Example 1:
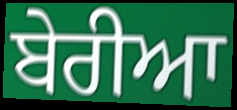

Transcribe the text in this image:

ਬੇਰੀਆ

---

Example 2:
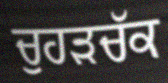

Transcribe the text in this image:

ਚੁਹੜਚੱਕ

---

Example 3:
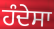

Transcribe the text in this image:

ਹੰਦੇਸਾ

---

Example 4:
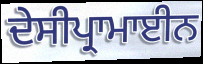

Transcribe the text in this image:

ਦੇਸੀਪ੍ਰਾਮਾਈਨ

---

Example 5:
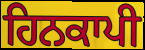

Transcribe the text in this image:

ਹਿਨਕਾਪੀ